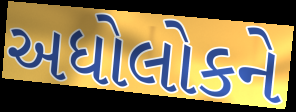
અધોલોકને